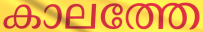
കാലത്തേ